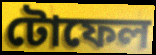
টোফেল